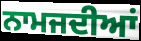
ਨਾਮਜਦੀਆਂ